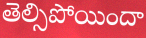
తెల్సిపోయిందా